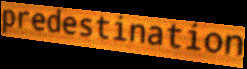
predestination